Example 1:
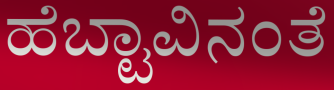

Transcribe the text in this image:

ಹೆಬ್ಟಾವಿನಂತೆ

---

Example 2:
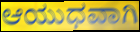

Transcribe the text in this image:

ಆಯುಧವಾಗಿ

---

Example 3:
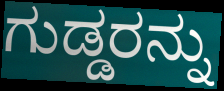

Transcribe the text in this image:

ಗುಡ್ಡರನ್ನು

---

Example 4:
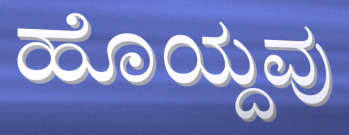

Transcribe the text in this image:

ಹೊಯ್ದವು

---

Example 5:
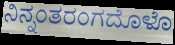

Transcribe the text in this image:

ನಿನ್ನಂತರಂಗದೊಳೊ